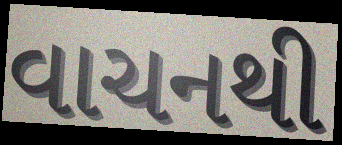
વાચનથી